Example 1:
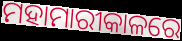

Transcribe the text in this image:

ମହାମାରୀକାଳରେ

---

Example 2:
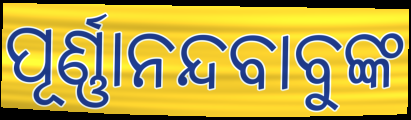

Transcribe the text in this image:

ପୂର୍ଣ୍ଣାନନ୍ଦବାବୁଙ୍କ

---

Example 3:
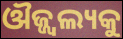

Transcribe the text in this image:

ଔଜ୍ଜ୍ଵଲ୍ୟକୁ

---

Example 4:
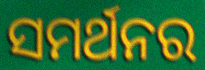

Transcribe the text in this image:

ସମର୍ଥନର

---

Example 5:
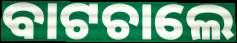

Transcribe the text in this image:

ବାଟଚାଲେ